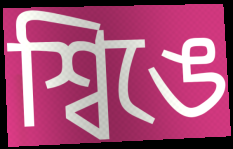
শ্বিঙে